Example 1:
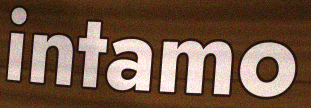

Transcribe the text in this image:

intamo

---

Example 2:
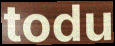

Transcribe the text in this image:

todu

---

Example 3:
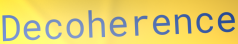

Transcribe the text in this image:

Decoherence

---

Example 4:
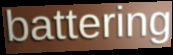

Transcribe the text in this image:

battering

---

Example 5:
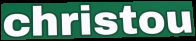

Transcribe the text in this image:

christou